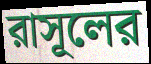
রাসূলের